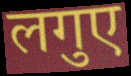
लगुए